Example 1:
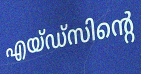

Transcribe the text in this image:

എയ്ഡ്സിന്റെ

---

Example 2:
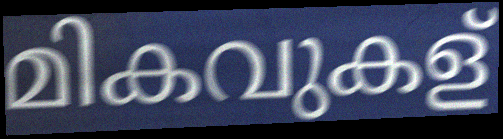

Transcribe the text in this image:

മികവുകള്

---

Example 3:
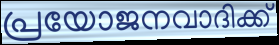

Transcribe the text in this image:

പ്രയോജനവാദിക്ക്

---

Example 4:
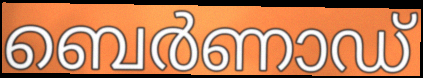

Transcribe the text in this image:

ബെർണാഡ്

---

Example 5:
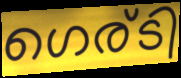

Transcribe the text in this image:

ഗെര്ടി